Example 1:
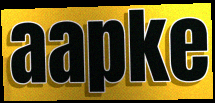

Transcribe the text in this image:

aapke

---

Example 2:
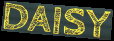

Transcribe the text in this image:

DAISY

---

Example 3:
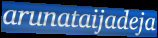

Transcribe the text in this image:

arunataijadeja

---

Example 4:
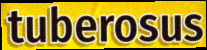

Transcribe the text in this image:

tuberosus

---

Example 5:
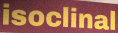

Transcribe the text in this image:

isoclinal